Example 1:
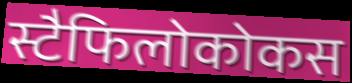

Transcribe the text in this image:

स्टैफिलोकोकस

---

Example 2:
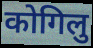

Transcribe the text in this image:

कोगिलु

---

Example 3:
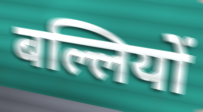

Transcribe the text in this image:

बल्लियों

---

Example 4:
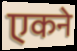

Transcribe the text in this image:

एकने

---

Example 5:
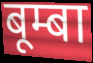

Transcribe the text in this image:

बूम्बा